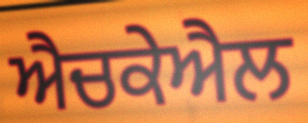
ਐਚਕੇਐਲ